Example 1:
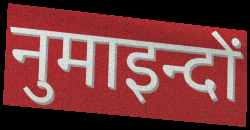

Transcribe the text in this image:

नुमाइन्दों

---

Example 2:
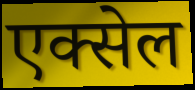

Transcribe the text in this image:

एक्सेल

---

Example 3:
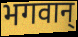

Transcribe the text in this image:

भगवान्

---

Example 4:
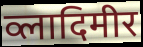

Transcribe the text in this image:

व्लादिमीर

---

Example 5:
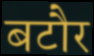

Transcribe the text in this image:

बटौर